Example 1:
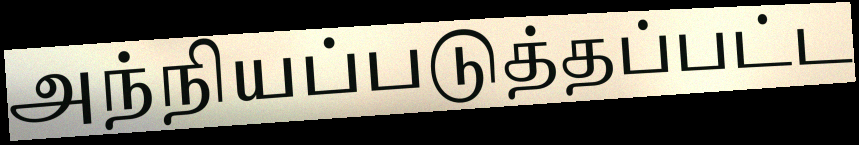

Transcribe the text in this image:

அந்நியப்படுத்தப்பட்ட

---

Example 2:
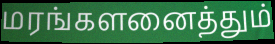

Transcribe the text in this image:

மரங்களனைத்தும்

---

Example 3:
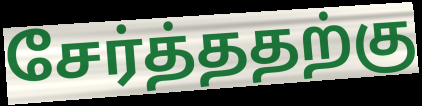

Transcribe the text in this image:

சேர்த்ததற்கு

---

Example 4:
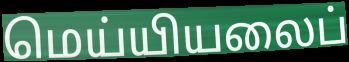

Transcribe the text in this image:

மெய்யியலைப்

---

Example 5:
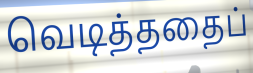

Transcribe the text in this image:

வெடித்ததைப்